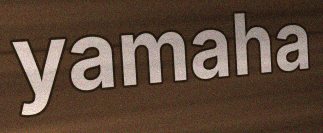
yamaha